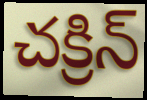
చక్రిన్